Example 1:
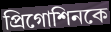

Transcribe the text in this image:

প্রিগোশিনকে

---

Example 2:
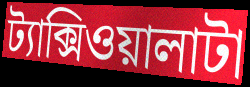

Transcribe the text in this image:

ট্যাক্সিওয়ালাটা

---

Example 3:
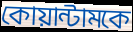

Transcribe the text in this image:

কোয়ান্টামকে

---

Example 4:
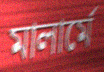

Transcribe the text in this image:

মালার্মে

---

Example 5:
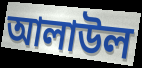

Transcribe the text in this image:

আলাউল